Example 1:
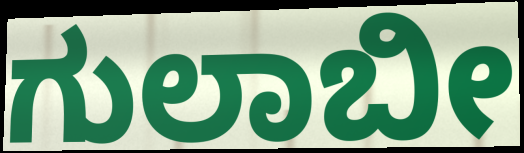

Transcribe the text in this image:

ಗುಲಾಬೀ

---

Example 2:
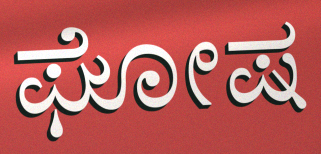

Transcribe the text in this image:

ಘೋಷ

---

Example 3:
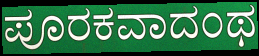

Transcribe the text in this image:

ಪೂರಕವಾದಂಥ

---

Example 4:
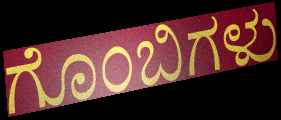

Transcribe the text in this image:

ಗೊಂಬಿಗಳು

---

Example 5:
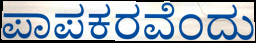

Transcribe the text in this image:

ಪಾಪಕರವೆಂದು